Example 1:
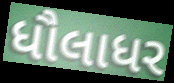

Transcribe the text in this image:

ધૌલાધર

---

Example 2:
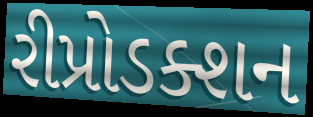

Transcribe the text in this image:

રીપ્રોડક્શન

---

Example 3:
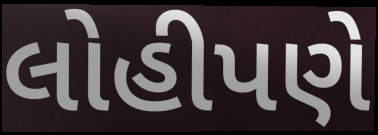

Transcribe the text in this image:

લોહીપણે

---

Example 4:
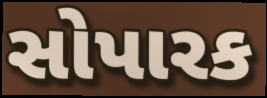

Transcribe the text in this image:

સોપારક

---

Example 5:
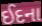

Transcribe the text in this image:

ઈદના